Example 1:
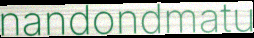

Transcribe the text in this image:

nandondmatu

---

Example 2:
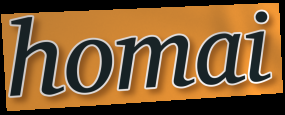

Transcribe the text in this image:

homai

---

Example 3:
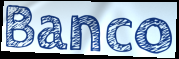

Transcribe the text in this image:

Banco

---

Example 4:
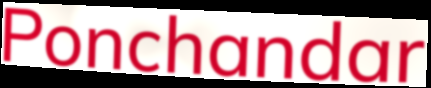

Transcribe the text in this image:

Ponchandar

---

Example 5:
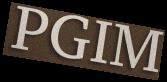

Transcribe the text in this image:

PGIM